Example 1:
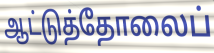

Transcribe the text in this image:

ஆட்டுத்தோலைப்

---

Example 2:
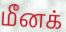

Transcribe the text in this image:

மீனக்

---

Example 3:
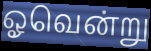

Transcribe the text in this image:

ஓவென்று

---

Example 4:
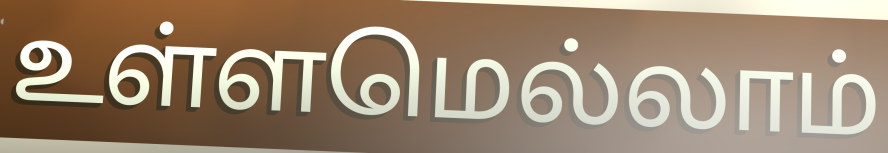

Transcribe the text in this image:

உள்ளமெல்லாம்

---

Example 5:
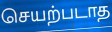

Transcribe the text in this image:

செயற்படாத